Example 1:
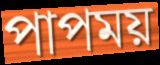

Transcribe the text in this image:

পাপময়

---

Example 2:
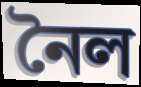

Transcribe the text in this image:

নৈল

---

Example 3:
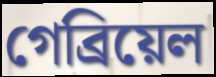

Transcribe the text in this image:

গেব্রিয়েল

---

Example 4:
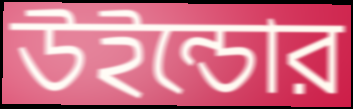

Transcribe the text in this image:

উইন্ডোর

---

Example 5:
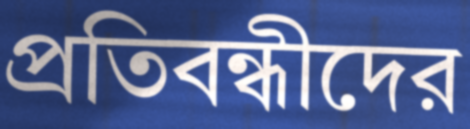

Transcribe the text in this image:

প্রতিবন্ধীদের